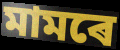
মামৰে